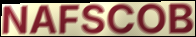
NAFSCOB